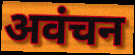
अवंचन